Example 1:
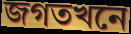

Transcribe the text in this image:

জগতখনে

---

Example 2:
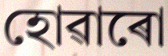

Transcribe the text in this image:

হোৱাৰো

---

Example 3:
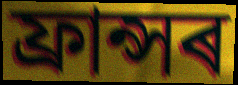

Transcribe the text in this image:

ফ্ৰান্সৰ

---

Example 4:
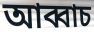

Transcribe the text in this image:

আব্বাচ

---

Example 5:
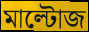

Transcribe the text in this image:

মাল্টোজ